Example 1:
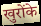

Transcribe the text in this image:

खुरोंके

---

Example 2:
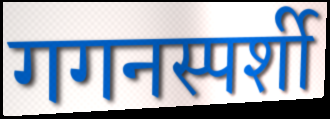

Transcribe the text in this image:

गगनस्पर्शी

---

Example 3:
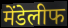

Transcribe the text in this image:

मेंडेलीफ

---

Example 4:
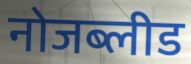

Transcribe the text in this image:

नोजब्लीड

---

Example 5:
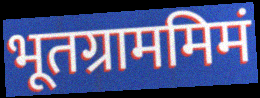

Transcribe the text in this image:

भूतग्राममिमं